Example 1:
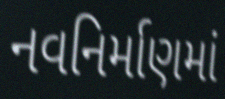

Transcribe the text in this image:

નવનિર્માણમાં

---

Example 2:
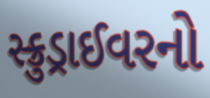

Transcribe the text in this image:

સ્ક્રુડ્રાઈવરનો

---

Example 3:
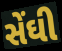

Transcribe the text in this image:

સેંઘી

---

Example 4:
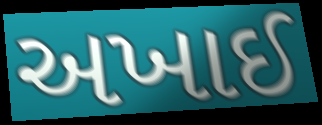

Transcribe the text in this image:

અખાઈ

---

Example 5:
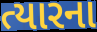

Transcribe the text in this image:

ત્યારના